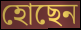
হোছেন